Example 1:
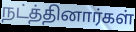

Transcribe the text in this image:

நட்த்தினார்கள்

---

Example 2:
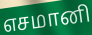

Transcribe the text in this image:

எசமானி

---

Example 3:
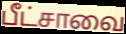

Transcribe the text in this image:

பீட்சாவை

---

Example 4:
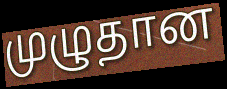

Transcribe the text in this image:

முழுதான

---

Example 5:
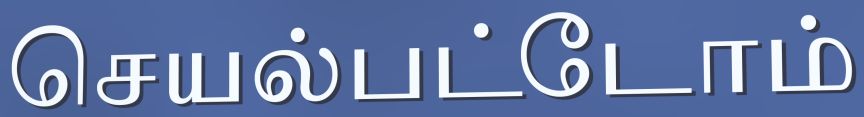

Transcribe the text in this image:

செயல்பட்டோம்